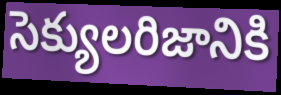
సెక్యులరిజానికి